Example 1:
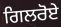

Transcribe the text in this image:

ਗਿਲਰੋਏ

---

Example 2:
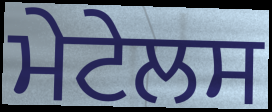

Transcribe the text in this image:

ਮੇਟੇਲਸ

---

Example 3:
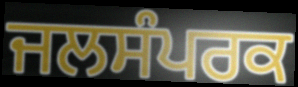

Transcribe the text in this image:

ਜਲਸੰਪਰਕ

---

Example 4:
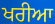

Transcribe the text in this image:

ਖਰੀਆ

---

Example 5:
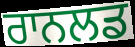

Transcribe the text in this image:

ਰਾਨਲਡ